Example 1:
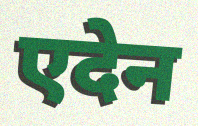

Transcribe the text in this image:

एदेन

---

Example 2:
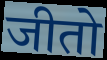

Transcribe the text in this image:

जीतो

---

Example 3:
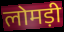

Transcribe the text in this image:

लोमड़ी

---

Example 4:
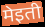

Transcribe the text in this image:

मेइती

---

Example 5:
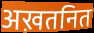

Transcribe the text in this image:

अख़तनित